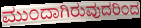
ಮುಂದಾಗಿರುವುದರಿಂದ